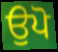
ਉਪੋ